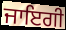
ਜਾਇਗੀ